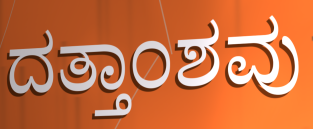
ದತ್ತಾಂಶವು